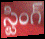
స్టింగ్